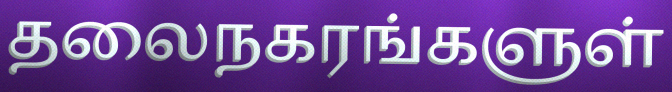
தலைநகரங்களுள்